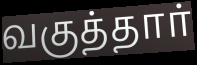
வகுத்தார்